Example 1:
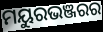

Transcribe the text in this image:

ମୟୁରଭଞ୍ଜରର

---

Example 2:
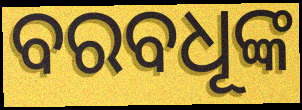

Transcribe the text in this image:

ବରବଧୂଙ୍କ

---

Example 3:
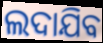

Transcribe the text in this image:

ଲଦାଯିବ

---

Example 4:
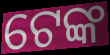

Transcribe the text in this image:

ଟେଙ୍କ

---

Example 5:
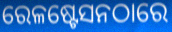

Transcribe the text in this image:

ରେଳଷ୍ଟେସନଠାରେ